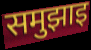
समुझाइ